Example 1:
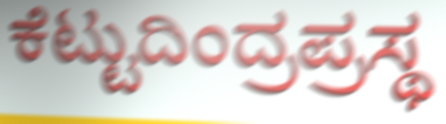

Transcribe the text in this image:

ಕೆಟ್ಟುದಿಂದ್ರಪ್ರಸ್ಥ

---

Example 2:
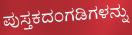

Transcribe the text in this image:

ಪುಸ್ತಕದಂಗಡಿಗಳನ್ನು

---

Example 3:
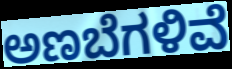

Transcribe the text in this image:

ಅಣಬೆಗಳಿವೆ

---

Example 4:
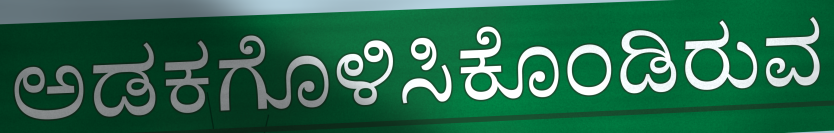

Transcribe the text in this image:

ಅಡಕಗೊಳಿಸಿಕೊಂಡಿರುವ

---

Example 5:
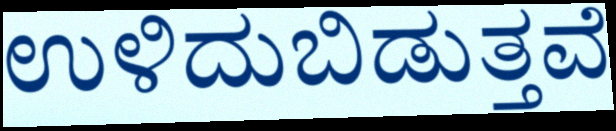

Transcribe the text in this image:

ಉಳಿದುಬಿಡುತ್ತವೆ